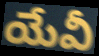
యేవీ